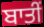
ਬਾਤੀਂ